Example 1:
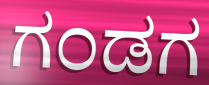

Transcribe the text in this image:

ಗಂಡಗ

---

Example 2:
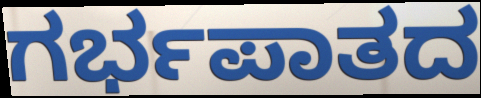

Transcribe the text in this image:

ಗರ್ಭಪಾತದ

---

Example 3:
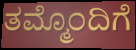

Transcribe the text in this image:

ತಮ್ಮೊಂದಿಗೆ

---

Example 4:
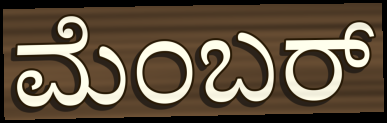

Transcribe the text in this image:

ಮೆಂಬರ್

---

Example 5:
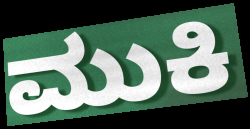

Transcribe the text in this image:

ಮುಕಿ